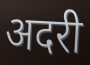
अदरी